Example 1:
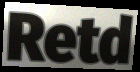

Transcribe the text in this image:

Retd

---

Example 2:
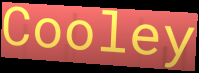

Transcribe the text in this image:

Cooley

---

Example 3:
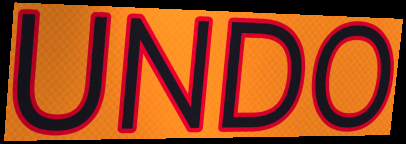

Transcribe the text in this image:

UNDO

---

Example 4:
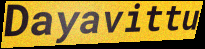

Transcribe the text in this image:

Dayavittu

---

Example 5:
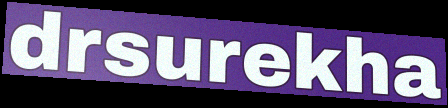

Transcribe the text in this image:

drsurekha